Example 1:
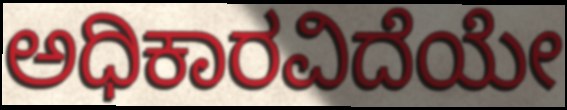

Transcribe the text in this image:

ಅಧಿಕಾರವಿದೆಯೇ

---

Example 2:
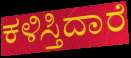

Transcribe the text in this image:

ಕಳಿಸ್ತಿದಾರೆ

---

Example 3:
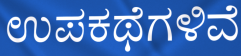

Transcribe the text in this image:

ಉಪಕಥೆಗಳಿವೆ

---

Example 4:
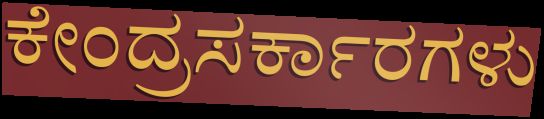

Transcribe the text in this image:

ಕೇಂದ್ರಸರ್ಕಾರಗಳು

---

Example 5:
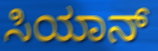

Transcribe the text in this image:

ಸಿಯಾನ್